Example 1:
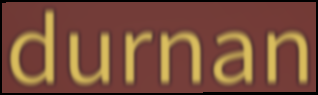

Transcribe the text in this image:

durnan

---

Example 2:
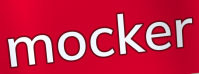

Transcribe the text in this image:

mocker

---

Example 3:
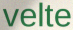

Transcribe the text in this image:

velte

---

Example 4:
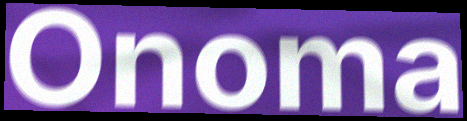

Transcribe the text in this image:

Onoma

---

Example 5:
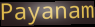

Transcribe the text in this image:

Payanam